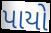
પાયો